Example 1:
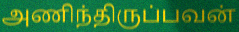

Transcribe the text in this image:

அணிந்திருப்பவன்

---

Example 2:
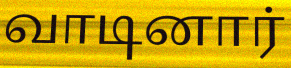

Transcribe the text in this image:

வாடினார்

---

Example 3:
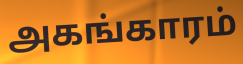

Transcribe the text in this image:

அகங்காரம்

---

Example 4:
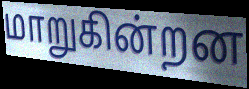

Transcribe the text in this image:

மாறுகின்றன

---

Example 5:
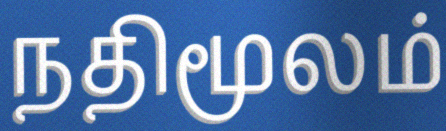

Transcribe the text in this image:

நதிமூலம்